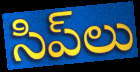
సిప్‌లు